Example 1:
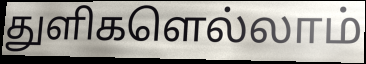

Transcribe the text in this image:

துளிகளெல்லாம்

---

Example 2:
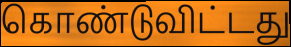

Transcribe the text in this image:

கொண்டுவிட்டது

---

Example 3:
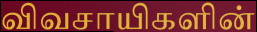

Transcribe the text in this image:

விவசாயிகளின்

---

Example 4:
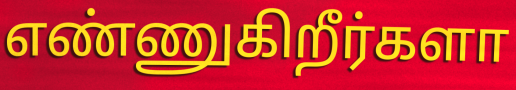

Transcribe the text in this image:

எண்ணுகிறீர்களா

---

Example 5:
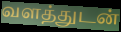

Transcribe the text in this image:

வளத்துடன்